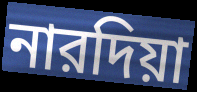
নারদিয়া